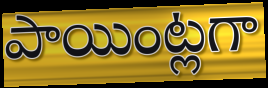
పాయింట్లగా